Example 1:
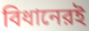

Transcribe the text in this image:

বিধানেরই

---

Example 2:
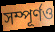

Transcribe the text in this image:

সম্পূর্ণও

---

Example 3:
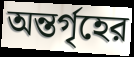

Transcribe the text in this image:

অন্তর্গৃহের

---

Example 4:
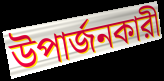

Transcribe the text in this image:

উপার্জনকারী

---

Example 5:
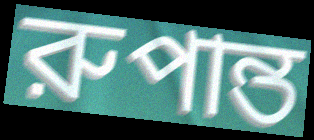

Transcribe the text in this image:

রুপান্ত